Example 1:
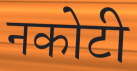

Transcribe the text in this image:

नकोटी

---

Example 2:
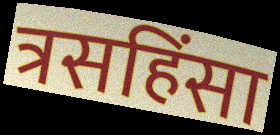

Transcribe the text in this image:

त्रसहिंसा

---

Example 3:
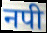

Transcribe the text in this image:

नपी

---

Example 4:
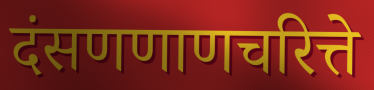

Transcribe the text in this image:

दंसणणाणचरित्ते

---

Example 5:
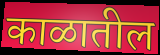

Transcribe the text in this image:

काळातील